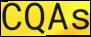
CQAs